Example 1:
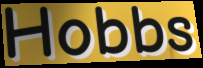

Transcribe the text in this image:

Hobbs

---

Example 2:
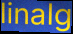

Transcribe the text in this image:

linalg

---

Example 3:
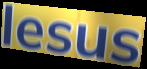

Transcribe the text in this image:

Iesus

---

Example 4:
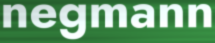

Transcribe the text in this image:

negmann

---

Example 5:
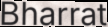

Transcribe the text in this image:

Bharrat